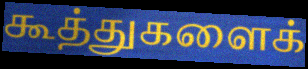
கூத்துகளைக்